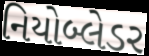
નિયોબ્લેડર